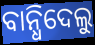
ବାନ୍ଧିଦେଲୁ